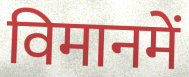
विमानमें